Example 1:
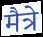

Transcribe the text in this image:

मैत्रे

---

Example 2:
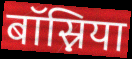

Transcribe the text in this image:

बॉस्निया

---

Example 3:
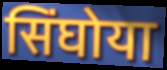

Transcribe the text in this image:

सिंघोया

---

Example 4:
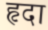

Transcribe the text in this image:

हृदा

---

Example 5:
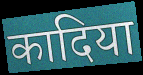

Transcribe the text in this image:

कादिया